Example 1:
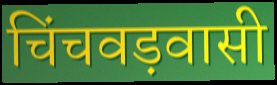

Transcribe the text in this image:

चिंचवड़वासी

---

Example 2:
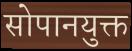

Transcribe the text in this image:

सोपानयुक्त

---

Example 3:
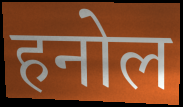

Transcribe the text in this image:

हनोल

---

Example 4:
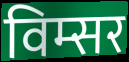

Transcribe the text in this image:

विम्सर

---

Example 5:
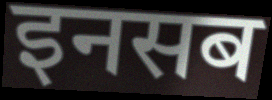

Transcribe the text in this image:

इनसब